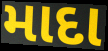
માદા